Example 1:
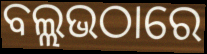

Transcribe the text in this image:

ବଲ୍ଲଭଠାରେ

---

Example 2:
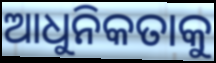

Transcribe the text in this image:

ଆଧୁନିକତାକୁ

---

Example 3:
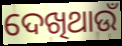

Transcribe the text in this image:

ଦେଖିଥାଉଁ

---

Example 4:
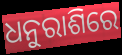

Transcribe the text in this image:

ଧନୁରାଶିରେ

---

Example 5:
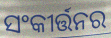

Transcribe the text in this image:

ସଂକୀର୍ତ୍ତନର